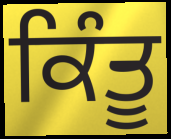
ਕਿੰਤੂ